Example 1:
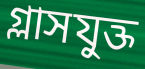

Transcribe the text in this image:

গ্লাসযুক্ত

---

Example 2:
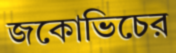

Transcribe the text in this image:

জকোভিচের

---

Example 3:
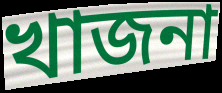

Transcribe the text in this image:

খাজনা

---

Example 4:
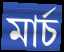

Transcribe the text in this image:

মার্চ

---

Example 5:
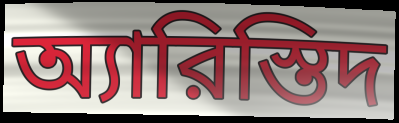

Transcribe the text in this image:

অ্যারিস্তিদ